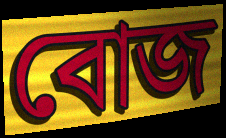
বোজ